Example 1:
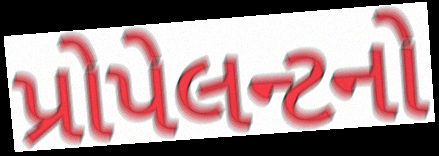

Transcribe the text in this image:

પ્રોપેલન્ટનો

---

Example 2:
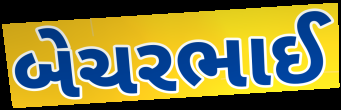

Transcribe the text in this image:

બેચરભાઈ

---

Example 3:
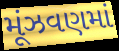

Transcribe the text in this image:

મૂંઝવણમાં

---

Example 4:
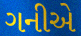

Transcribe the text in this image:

ગનીએ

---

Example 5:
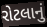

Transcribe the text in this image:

રોટલાનું